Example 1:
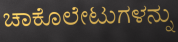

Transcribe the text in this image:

ಚಾಕೊಲೇಟುಗಳನ್ನು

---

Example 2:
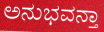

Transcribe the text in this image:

ಅನುಭವನ್ತಾ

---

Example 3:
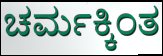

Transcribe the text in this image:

ಚರ್ಮಕ್ಕಿಂತ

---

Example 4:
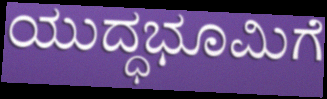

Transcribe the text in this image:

ಯುದ್ಧಭೂಮಿಗೆ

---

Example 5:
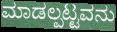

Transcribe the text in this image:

ಮಾಡಲ್ಪಟ್ಟವನು